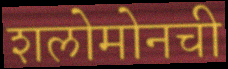
शलोमोनची